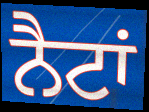
ਨੈਟਾਂ